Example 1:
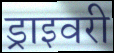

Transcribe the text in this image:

ड्राइवरी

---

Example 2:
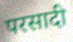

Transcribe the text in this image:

परसादी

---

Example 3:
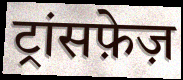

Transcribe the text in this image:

ट्रांसफ़ेज़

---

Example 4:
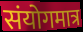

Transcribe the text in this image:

संयोगमात्र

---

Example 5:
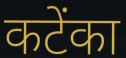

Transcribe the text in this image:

कटेंका